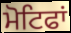
ਮੋਟਿਫਾਂ